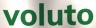
voluto